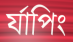
র্যাপিং